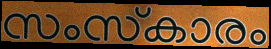
സംസ്‌കാരം